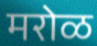
मरोळ